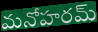
మనోహరమ్